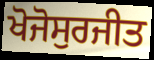
ਖੋਜੋਸੁਰਜੀਤ